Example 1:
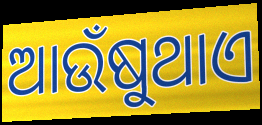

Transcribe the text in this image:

ଆଉଁଷୁଥାଏ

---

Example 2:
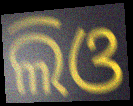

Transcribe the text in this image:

ଲିଓ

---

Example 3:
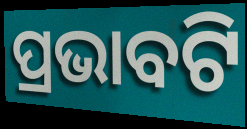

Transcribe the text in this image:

ପ୍ରଭାବଟି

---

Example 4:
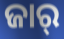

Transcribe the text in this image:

ଜାର୍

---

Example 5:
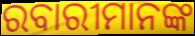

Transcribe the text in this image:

ରବାରୀମାନଙ୍କ